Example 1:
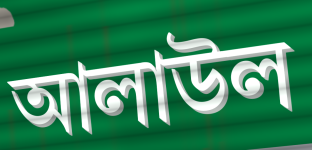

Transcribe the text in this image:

আলাউল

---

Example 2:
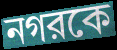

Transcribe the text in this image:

নগরকে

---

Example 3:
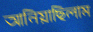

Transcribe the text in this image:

আনিয়াছিলাম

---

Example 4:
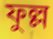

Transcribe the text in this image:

ফুল্ল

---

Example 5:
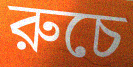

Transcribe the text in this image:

রুচে